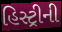
હિસ્ટ્રીની